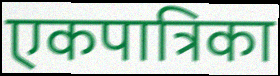
एकपात्रिका